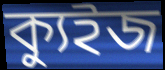
ক্যুইজ